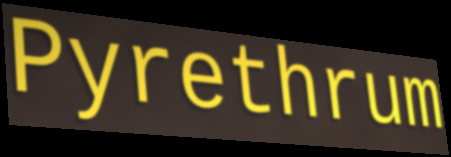
Pyrethrum